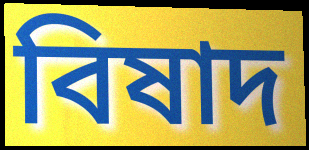
বিষাদ